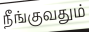
நீங்குவதும்